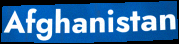
Afghanistan